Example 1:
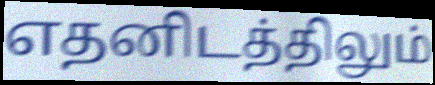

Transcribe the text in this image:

எதனிடத்திலும்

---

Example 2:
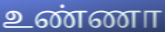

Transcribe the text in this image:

உண்ணா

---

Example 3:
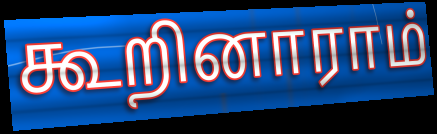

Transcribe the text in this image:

கூறினாராம்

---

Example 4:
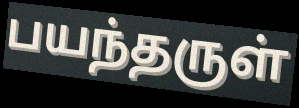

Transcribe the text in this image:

பயந்தருள்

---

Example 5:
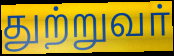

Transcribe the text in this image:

துற்றுவர்